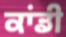
ਕਾਂਡੀ